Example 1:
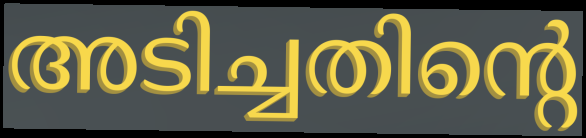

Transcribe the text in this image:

അടിച്ചതിന്റെ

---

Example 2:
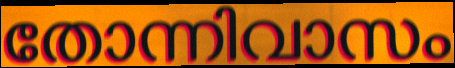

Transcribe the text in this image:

തോന്നിവാസം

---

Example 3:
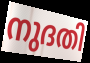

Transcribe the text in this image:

നുദതി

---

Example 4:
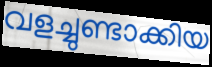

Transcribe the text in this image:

വളച്ചുണ്ടാക്കിയ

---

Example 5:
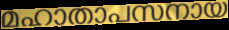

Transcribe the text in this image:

മഹാതാപസനായ